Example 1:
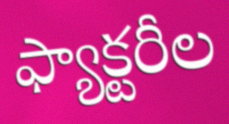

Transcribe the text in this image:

ఫ్యాక్టరీల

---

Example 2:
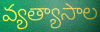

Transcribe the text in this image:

వ్యత్యాసాల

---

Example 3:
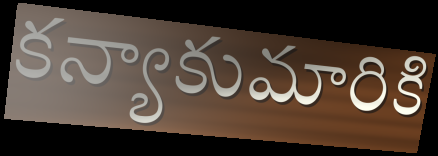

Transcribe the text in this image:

కన్యాకుమారికి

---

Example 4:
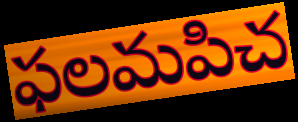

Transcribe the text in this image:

ఫలమపిచ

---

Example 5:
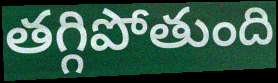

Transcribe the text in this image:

తగ్గిపోతుంది